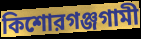
কিশোরগঞ্জগামী